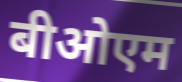
बीओएम